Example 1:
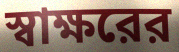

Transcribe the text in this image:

স্বাক্ষরের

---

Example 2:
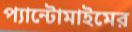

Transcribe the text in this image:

প্যান্টোমাইমের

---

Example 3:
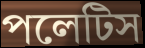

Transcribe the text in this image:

পলেটিস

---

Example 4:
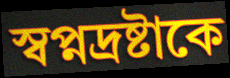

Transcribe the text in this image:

স্বপ্নদ্রষ্টাকে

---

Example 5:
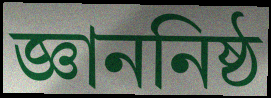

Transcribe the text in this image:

জ্ঞাননিষ্ঠ